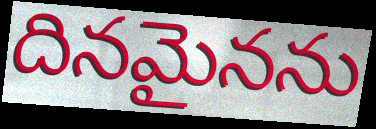
దినమైనను